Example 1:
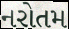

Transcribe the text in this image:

નરોતમ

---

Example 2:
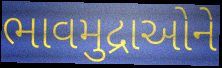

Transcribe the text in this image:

ભાવમુદ્રાઓને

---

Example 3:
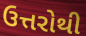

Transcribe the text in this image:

ઉત્તરોથી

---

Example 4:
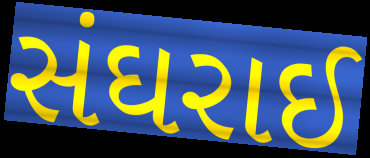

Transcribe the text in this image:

સંઘરાઈ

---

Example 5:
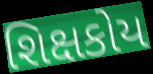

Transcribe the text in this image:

શિક્ષકોય